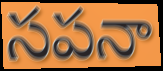
సపనా